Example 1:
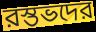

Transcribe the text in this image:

রস্তভদের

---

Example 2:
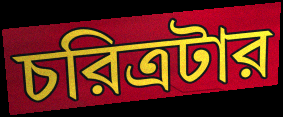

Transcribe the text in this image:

চরিত্রটার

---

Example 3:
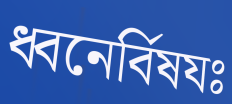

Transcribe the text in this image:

ধ্বনের্বিষযঃ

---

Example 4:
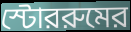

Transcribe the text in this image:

স্টোররুমের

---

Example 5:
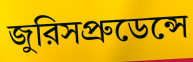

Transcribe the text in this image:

জুরিসপ্রুডেন্সে